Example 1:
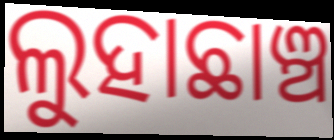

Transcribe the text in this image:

ଲୁହାଛାଞ୍ଚ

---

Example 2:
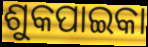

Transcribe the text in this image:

ଶୁକପାଇକା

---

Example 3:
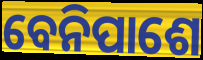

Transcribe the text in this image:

ବେନିପାଶେ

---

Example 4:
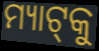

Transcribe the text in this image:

ମ୍ୟାଟ୍‌କୁ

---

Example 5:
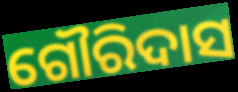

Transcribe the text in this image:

ଗୌରିଦାସ